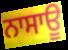
ਨਾਸਾਊ